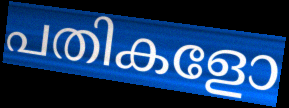
പതികളോ